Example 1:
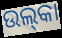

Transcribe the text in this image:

ଉଲ୍‍କା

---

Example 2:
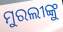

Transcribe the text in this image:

ମୁରଲୀଙ୍କୁ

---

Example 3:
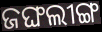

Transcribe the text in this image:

ଜଙ୍ଘଲୀଙ୍ଗ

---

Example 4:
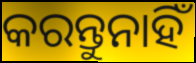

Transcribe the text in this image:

କରନ୍ତୁନାହିଁ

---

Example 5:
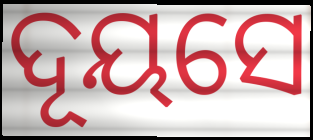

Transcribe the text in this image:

ଦୂୟସେ